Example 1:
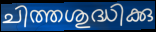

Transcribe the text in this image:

ചിത്തശുദ്ധിക്കു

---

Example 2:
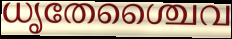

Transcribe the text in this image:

ധൃതേശ്ചൈവ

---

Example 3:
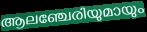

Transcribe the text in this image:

ആലഞ്ചേരിയുമായും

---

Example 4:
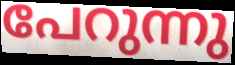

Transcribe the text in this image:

പേറുന്നു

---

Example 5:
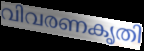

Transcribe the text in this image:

വിവരണകൃതി